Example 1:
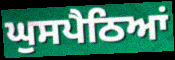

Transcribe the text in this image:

ਘੁਸਪੈਠਿਆਂ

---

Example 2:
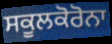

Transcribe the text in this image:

ਸਕੂਲਕੋਰੋਨਾ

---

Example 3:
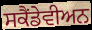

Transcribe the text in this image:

ਸਕੈਂਡੇਵੀਅਨ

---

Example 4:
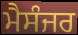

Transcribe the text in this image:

ਮੈਸੰਜਰ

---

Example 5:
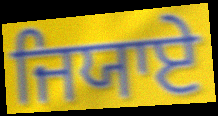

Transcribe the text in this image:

ਜਿਯਾਏ